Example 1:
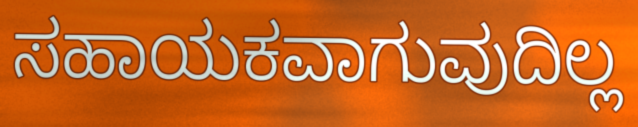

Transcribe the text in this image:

ಸಹಾಯಕವಾಗುವುದಿಲ್ಲ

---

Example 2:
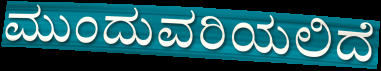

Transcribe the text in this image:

ಮುಂದುವರಿಯಲಿದೆ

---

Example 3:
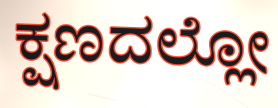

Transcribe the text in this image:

ಕ್ಷಣದಲ್ಲೋ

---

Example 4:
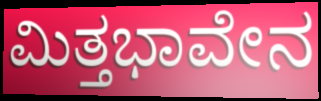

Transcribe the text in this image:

ಮಿತ್ತಭಾವೇನ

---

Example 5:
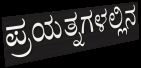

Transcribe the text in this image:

ಪ್ರಯತ್ನಗಳಲ್ಲಿನ